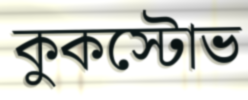
কুকস্টোভ